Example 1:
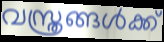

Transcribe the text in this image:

വസ്ത്രങ്ങൾക്ക്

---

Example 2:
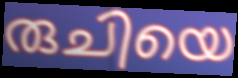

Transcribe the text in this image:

രുചിയെ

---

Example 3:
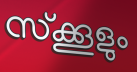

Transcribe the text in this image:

സ്ക്കൂളും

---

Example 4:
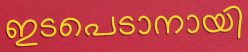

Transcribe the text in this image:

ഇടപെടാനായി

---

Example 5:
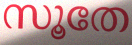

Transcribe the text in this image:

സൂതേ